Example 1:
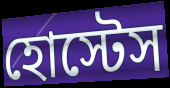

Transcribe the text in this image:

হোস্টেস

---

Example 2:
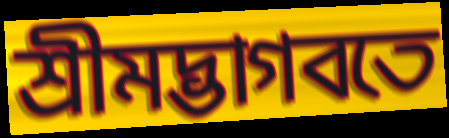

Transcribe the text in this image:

শ্রীমদ্ভাগবতে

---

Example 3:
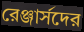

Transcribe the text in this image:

রেঞ্জার্সদের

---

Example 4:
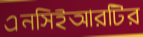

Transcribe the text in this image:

এনসিইআরটির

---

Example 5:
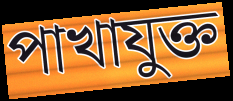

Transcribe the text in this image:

পাখাযুক্ত